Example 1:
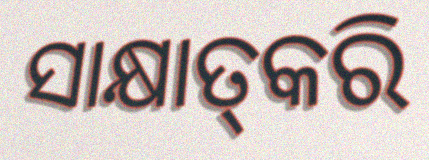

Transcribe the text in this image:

ସାକ୍ଷାତ୍‌କରି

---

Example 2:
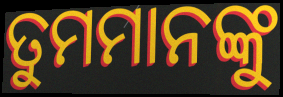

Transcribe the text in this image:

ତୁମମାନଙ୍କୁ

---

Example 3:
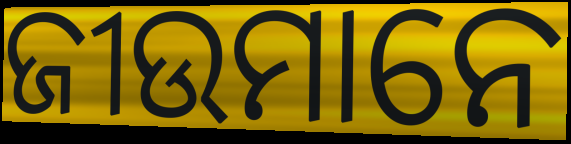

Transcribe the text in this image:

ଜୀଉମାନେ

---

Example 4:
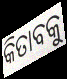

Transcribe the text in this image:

କିତାବକୁ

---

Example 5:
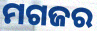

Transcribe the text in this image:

ମଗଜର